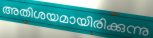
അതിശയമായിരിക്കുന്നു